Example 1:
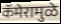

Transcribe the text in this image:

कॅमेरामुळे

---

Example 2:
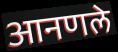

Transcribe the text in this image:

आनणले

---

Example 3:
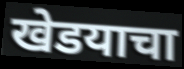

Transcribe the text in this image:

खेडयाचा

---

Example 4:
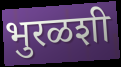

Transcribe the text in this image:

भुरळशी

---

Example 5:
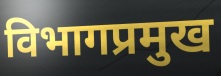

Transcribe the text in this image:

विभागप्रमुख